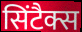
सिंटैक्स